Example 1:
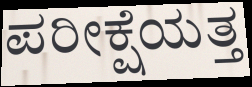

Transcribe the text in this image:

ಪರೀಕ್ಷೆಯತ್ತ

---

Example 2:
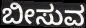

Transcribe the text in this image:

ಬೀಸುವ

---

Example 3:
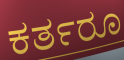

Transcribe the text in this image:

ಕರ್ತರೂ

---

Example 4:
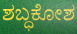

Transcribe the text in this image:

ಶಬ್ಧಕೋಶ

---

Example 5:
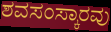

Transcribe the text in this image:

ಶವಸಂಸ್ಕಾರವು